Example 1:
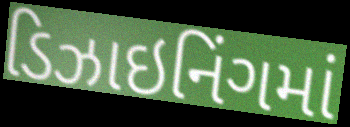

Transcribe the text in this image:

ડિઝાઇનિંગમાં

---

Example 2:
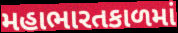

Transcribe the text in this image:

મહાભારતકાળમાં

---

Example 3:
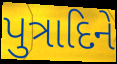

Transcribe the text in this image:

પુત્રાદિને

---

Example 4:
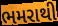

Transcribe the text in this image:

ભમરાથી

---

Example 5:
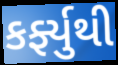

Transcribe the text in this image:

કર્ફ્યુથી